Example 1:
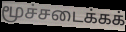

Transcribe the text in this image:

மூச்சடைக்கக்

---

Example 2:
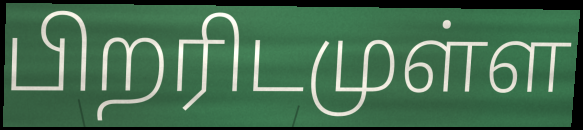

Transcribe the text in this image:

பிறரிடமுள்ள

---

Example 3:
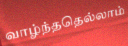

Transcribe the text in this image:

வாழ்ந்ததெல்லாம்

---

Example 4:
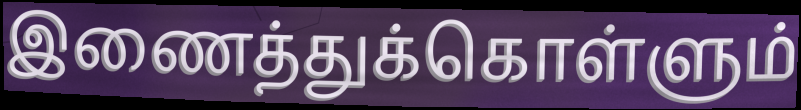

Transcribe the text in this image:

இணைத்துக்கொள்ளும்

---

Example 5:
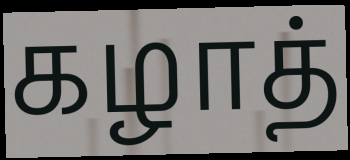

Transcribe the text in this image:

கழாத்